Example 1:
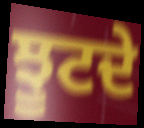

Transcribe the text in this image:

ਝੂਟਦੇ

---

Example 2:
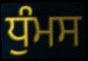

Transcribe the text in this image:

ਧੁੰਮਸ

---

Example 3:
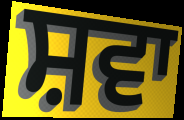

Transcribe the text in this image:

ਸ਼ਵਾ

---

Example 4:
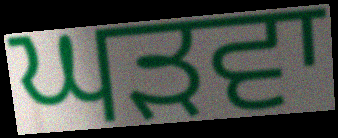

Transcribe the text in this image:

ਘੜਵਾ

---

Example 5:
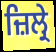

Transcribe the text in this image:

ਜ਼ਿਲ੍ਰੇ